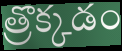
త్రొక్కడం